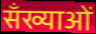
सँख्याओं